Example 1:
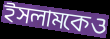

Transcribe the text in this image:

ইসলামকেও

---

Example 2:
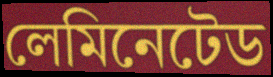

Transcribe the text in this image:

লেমিনেটেড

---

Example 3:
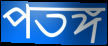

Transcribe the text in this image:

পতঙ্গ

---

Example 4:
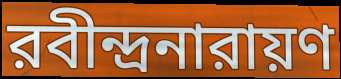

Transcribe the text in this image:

রবীন্দ্রনারায়ণ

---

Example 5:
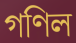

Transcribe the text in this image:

গণিল